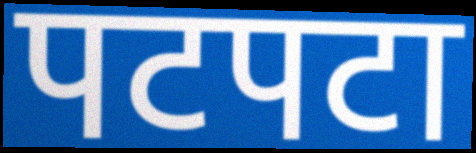
पटपटा